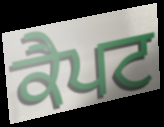
ਕੈਪਟ